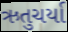
ઋતુચર્યા